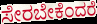
ಸೇರಬೇಕೆಂದರೆ